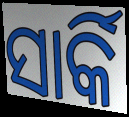
ସାର୍କି